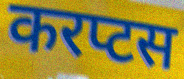
करप्टस